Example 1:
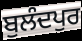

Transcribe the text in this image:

ਬੁਲੰਦਪੁਰ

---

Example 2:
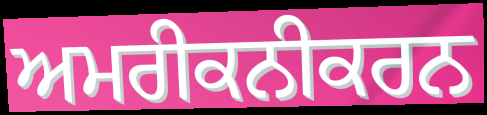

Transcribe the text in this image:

ਅਮਰੀਕਨੀਕਰਨ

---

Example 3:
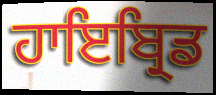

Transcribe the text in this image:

ਹਾਇਬ੍ਰਿਡ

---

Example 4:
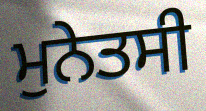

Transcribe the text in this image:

ਮੁਨੇਤਸੀ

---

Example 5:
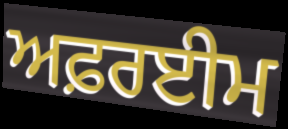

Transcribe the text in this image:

ਅਫ਼ਰਈਮ